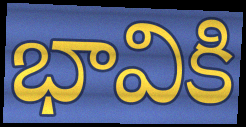
భావికి